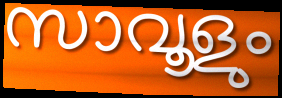
സാവൂളും